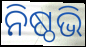
ନିଷ୍ଠଭି